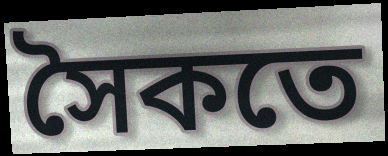
সৈকতে